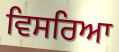
ਵਿਸਰਿਆ